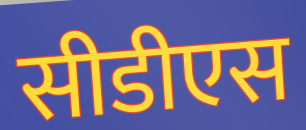
सीडीएस